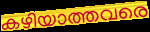
കഴിയാത്തവരെ